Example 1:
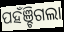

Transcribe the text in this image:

ପହଁଞ୍ଚିଗଲା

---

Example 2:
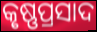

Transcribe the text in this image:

କୃଷ୍ଣପ୍ରସାଦ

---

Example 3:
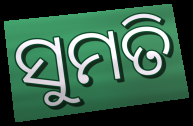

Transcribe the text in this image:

ସୁମତି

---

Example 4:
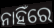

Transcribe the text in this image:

ନାହିଁରେ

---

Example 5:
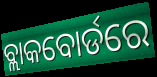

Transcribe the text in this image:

ବ୍ଲାକବୋର୍ଡରେ